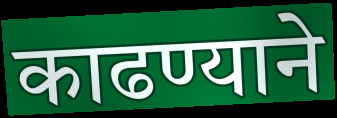
काढण्याने